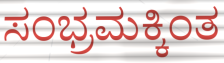
ಸಂಭ್ರಮಕ್ಕಿಂತ